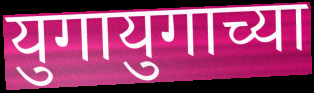
युगायुगाच्या